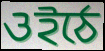
ওইঠে